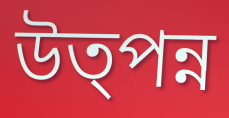
উত্পন্ন